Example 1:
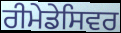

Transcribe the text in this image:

ਰੀਮੇਡੇਸਿਵਰ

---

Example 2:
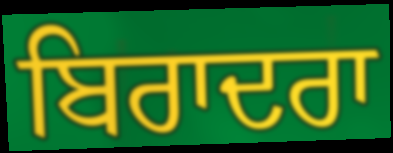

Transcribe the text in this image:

ਬਿਰਾਦਰਾ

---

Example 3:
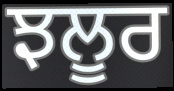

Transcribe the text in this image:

ਝਲੂਰ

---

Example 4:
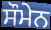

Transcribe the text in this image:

ਸੌਮੇਨ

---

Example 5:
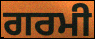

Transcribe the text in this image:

ਗਰਮੀ